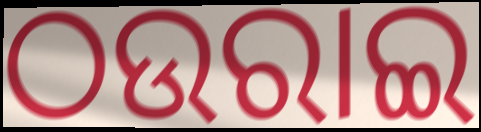
ଠଉରାଇ